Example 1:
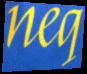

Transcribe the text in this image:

neq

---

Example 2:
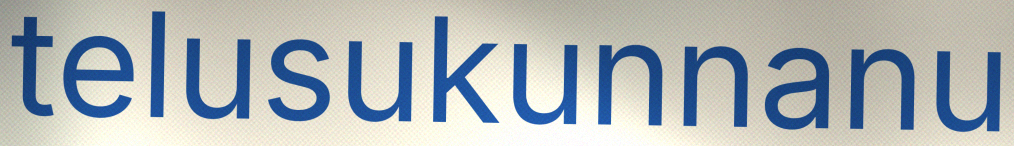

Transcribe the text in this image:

telusukunnanu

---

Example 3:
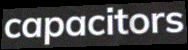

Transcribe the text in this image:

capacitors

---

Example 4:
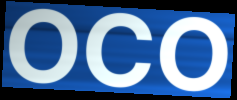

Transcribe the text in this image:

OCO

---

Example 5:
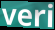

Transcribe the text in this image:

veri